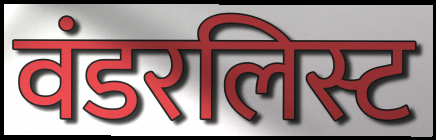
वंडरलिस्ट